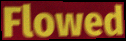
Flowed